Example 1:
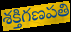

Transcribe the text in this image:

శక్తిగణపతి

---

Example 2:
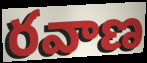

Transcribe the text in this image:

రవాణ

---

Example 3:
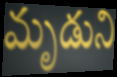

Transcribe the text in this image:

మృడుని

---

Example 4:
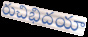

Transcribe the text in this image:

రుచిభిదయా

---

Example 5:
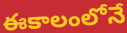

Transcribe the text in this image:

ఈకాలంలోనే